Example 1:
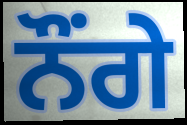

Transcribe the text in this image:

ਨੌਂਗੇ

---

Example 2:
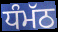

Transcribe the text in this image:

ਧੰਮੱਠ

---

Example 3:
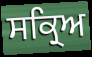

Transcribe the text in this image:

ਸਕ੍ਰਿਅ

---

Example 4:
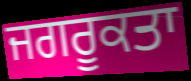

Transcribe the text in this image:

ਜਗਰੂਕਤਾ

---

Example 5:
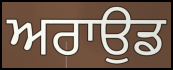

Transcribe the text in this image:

ਅਰਾਉਡ